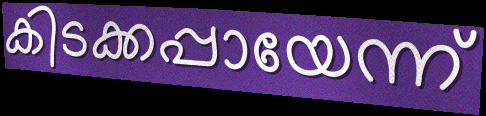
കിടക്കപ്പായേന്ന്